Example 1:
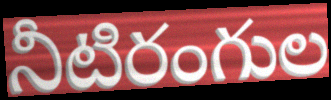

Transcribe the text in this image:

నీటిరంగుల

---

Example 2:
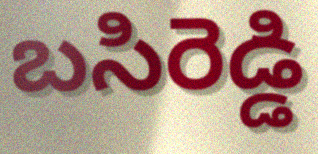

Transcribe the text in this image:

బసిరెడ్డి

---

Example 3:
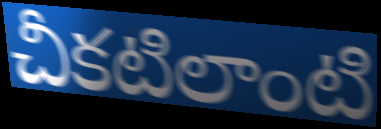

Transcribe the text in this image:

చీకటిలాంటి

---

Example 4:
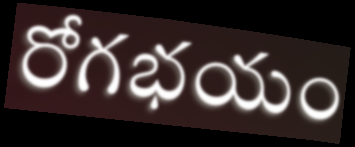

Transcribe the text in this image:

రోగభయం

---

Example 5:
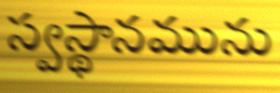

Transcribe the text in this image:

స్వస్థానమును